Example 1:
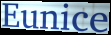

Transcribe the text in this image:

Eunice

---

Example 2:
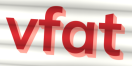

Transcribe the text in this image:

vfat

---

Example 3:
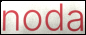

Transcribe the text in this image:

noda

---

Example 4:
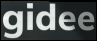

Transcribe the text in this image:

gidee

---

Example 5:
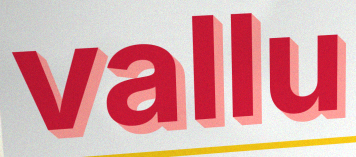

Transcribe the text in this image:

vallu